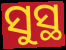
ସୁସ୍ଥ